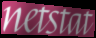
netstat